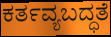
ಕರ್ತವ್ಯಬದ್ಧತೆ